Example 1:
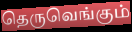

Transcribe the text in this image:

தெருவெங்கும்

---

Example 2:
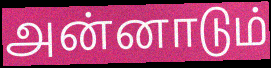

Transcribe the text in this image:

அன்னாடும்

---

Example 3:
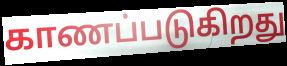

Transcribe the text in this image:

காணப்படுகிறது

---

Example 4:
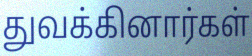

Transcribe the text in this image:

துவக்கினார்கள்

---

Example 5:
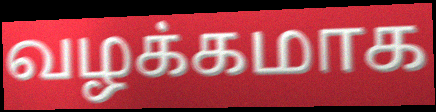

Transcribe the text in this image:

வழக்கமாக